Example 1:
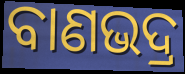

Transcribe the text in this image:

ବାଣଭଦ୍ର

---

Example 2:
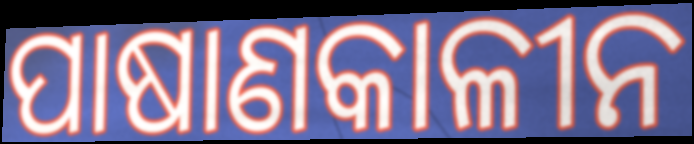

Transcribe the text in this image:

ପାଷାଣକାଳୀନ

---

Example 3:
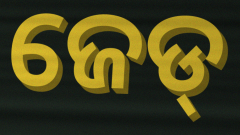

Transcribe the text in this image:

ଜେଡ୍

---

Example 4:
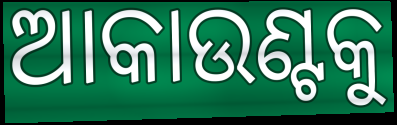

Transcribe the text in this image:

ଆକାଉଣ୍ଟକୁ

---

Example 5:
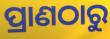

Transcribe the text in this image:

ପ୍ରାଣଠାରୁ